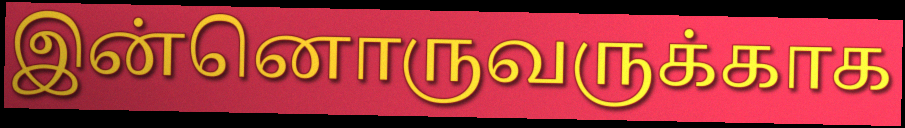
இன்னொருவருக்காக